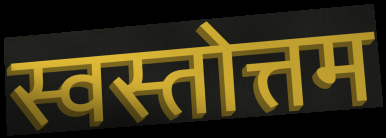
स्वस्तोत्तम